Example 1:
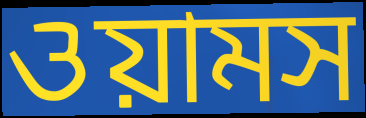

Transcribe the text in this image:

ওয়ামস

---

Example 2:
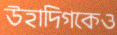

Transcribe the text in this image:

উহাদিগকেও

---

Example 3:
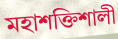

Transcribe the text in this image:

মহাশক্তিশালী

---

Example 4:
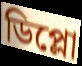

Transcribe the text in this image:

ডিপ্লো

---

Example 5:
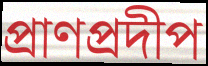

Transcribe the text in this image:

প্রাণপ্রদীপ